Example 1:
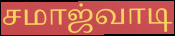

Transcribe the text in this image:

சமாஜ்வாடி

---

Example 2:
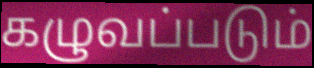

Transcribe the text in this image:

கழுவப்படும்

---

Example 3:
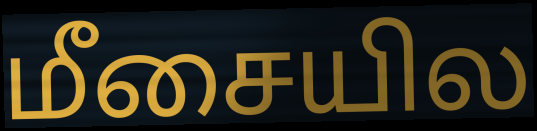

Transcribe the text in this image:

மீசையில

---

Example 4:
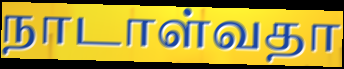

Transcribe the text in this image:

நாடாள்வதா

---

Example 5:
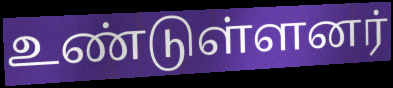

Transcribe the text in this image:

உண்டுள்ளனர்